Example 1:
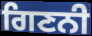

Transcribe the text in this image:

ਗਿਣਨੀ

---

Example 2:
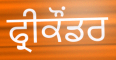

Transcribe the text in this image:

ਫ੍ਰੀਕੌਂਡਰ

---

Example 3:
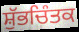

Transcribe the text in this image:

ਸ਼ੁੱਭਚਿੰਤਕ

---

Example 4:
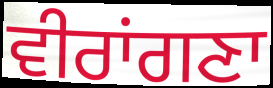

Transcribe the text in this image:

ਵੀਰਾਂਗਣਾ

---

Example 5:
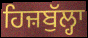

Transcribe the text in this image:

ਹਿਜ਼ਬੁੱਲ੍ਹਾ